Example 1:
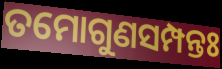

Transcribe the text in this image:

ତମୋଗୁଣସମ୍ପନ୍ତଃ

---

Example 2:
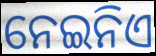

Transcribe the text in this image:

ନେଇନିଏ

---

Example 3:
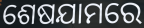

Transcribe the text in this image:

ଶେଷଯାମରେ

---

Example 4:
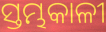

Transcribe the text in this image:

ସ୍ତମ୍ଭକାଳୀ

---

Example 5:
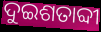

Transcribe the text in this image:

ଦୁଇଶତାବ୍ଦୀ